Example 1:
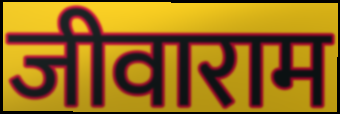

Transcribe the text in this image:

जीवाराम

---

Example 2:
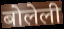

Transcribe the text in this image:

बोलेली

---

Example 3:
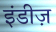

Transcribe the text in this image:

इंडीज़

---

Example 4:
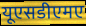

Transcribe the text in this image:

यूएसडीएमए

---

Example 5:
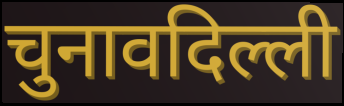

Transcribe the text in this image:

चुनावदिल्ली